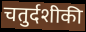
चतुर्दशीकी